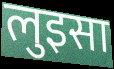
लुइसा